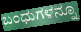
ಬಂಧುಗಳನ್ನೂ